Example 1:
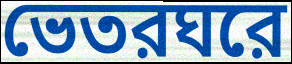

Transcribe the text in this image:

ভেতরঘরে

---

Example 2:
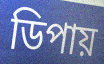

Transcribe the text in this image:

ডিপায়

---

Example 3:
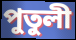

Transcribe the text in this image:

পুতুলী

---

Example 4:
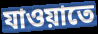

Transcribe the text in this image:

যাওয়াতে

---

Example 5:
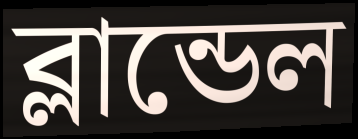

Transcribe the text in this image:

ব্লান্ডেল